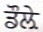
ਡੌਲ਼ੇ